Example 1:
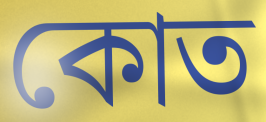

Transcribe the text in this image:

কোত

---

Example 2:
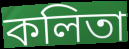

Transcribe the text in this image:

কলিতা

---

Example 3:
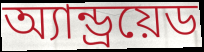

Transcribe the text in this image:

অ্যান্ড্রয়েড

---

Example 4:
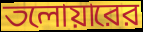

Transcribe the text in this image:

তলোয়ারের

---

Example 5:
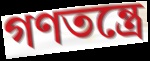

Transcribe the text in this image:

গণতন্ত্রে